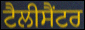
ਟੈਲੀਸੈਂਟਰ